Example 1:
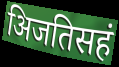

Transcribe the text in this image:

अिजतिसहं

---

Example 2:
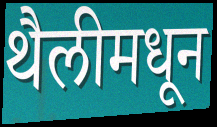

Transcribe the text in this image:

थैलीमधून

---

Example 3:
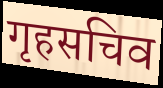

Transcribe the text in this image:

गृहसचिव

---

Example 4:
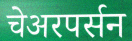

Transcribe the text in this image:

चेअरपर्सन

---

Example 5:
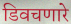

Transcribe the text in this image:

डिवचणारे